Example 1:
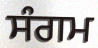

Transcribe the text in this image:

ਸੰਗਮ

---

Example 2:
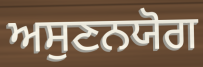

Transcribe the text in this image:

ਅਸੁਣਨਯੋਗ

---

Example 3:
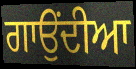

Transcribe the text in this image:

ਗਾਉਂਦੀਆ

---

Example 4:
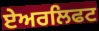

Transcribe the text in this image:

ਏਅਰਲਿਫਟ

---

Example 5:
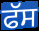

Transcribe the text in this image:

ਫੱਸ